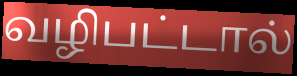
வழிபட்டால்